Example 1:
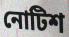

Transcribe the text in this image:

নোটিশ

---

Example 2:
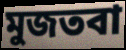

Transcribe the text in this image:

মুজতবা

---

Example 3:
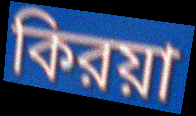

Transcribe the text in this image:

কিরয়া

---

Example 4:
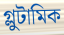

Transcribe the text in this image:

গ্লুটামিক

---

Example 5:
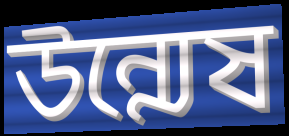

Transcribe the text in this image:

উন্মেষ